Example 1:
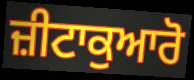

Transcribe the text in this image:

ਜ਼ੀਟਾਕੁਆਰੋ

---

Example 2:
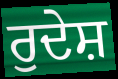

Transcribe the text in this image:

ਰੁਦੇਸ਼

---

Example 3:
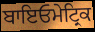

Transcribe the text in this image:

ਬਾਇਓਮੇਟ੍ਰਿਕ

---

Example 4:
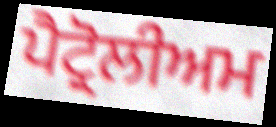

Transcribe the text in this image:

ਪੈਟ੍ਰੋਲੀਅਮ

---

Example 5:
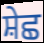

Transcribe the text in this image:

ਸ਼ੇਛ